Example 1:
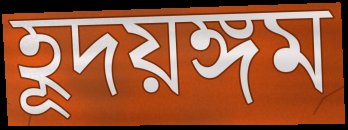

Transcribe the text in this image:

হূদয়ঙ্গম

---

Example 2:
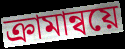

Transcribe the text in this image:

ক্রামান্বয়ে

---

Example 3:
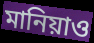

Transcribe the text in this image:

মানিয়াও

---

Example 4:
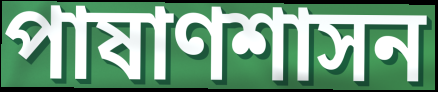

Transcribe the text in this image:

পাষাণশাসন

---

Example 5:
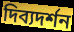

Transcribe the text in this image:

দিব্যদর্শন